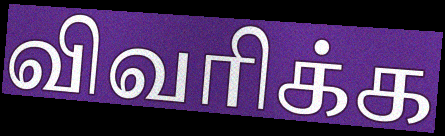
விவரிக்க